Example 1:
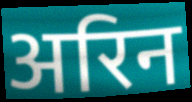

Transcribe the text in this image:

अरिन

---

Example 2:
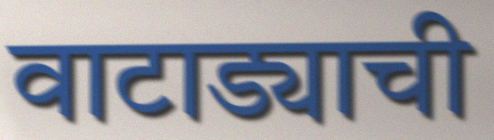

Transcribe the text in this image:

वाटाड्याची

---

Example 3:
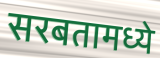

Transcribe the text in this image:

सरबतामध्ये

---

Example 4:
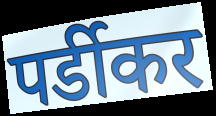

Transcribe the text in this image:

पर्डीकर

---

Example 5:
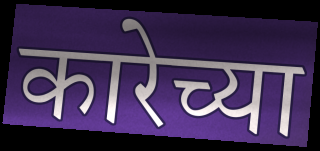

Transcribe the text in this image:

कारेच्या